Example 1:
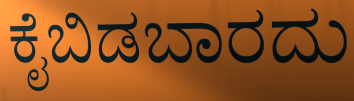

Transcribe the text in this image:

ಕೈಬಿಡಬಾರದು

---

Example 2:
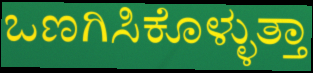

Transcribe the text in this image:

ಒಣಗಿಸಿಕೊಳ್ಳುತ್ತಾ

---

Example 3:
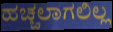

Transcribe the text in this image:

ಹಚ್ಚಲಾಗಲಿಲ್ಲ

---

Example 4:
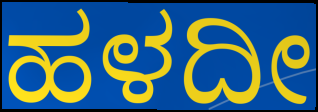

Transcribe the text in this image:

ಹಳದೀ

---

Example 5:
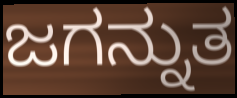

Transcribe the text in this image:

ಜಗನ್ನುತ